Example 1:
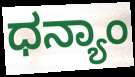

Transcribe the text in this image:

ಧನ್ಯಾಂ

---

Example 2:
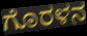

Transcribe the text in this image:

ಗೊರಳನ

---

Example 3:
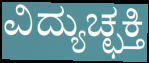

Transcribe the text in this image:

ವಿದ್ಯುಚ್ಛಕ್ತಿ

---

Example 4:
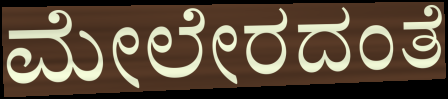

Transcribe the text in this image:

ಮೇಲೇರದಂತೆ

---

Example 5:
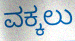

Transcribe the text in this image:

ವಕ್ಕಲು